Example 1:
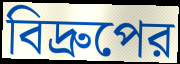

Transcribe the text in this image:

বিদ্রুপের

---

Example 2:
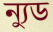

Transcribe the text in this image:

ন্যুড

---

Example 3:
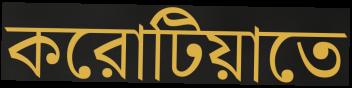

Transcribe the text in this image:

করোটিয়াতে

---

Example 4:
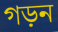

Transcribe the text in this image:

গড়ন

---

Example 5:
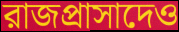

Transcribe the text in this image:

রাজপ্রাসাদেও